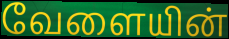
வேளையின்